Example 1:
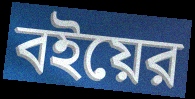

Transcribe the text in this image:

বইয়ের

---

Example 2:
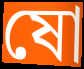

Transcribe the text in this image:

ষো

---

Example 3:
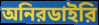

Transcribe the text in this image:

অনিরডাইরি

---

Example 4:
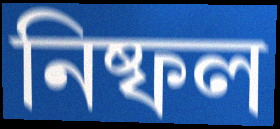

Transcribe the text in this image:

নিষ্ফল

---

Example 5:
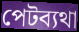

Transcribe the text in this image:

পেটব্যথা